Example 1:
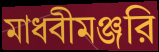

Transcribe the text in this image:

মাধবীমঞ্জরি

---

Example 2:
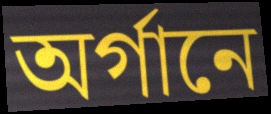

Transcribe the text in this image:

অর্গানে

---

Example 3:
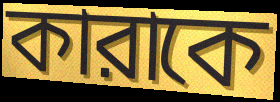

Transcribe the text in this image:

কারাকে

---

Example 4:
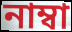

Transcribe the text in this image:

নাম্বা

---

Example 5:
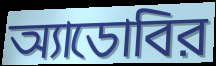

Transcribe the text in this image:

অ্যাডোবির